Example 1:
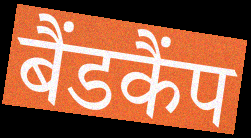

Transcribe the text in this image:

बैंडकैंप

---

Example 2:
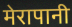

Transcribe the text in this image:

मेरापानी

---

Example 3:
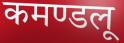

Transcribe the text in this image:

कमण्डलू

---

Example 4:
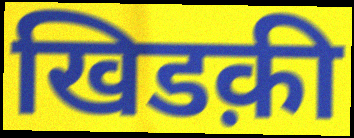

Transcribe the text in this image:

खिडक़ी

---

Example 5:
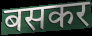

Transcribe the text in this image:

बसकर